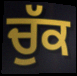
ਚੁੱਕ